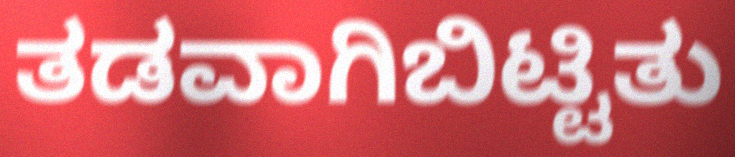
ತಡವಾಗಿಬಿಟ್ಟಿತು